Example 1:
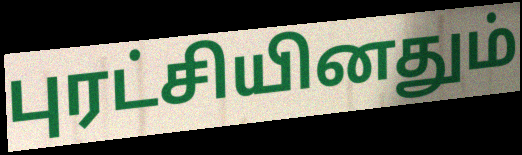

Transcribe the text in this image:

புரட்சியினதும்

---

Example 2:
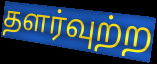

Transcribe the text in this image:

தளர்வுற்ற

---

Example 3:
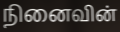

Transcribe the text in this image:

நினைவின்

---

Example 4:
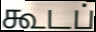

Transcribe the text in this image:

கூடப்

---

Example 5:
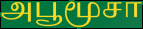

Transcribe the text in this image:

அபூமூசா